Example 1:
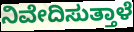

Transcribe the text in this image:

ನಿವೇದಿಸುತ್ತಾಳೆ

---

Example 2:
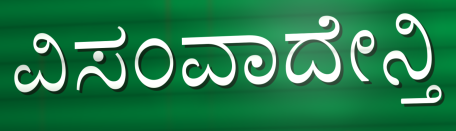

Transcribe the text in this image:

ವಿಸಂವಾದೇನ್ತಿ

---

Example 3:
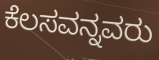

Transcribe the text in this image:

ಕೆಲಸವನ್ನವರು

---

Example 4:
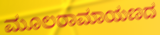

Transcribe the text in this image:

ಮೂಲರಾಮಾಯಣದ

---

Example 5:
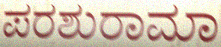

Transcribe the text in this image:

ಪರಶುರಾಮಾ